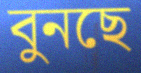
বুনছে